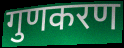
गुणकरण